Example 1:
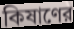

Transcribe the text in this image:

কিষাণের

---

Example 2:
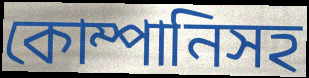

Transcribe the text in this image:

কোম্পানিসহ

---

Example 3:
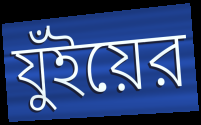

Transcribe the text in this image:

যুঁইয়ের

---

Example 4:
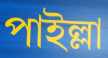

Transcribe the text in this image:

পাইল্লা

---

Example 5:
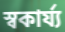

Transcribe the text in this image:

স্বকার্য্য